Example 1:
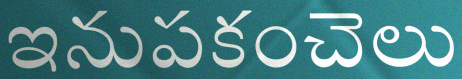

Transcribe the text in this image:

ఇనుపకంచెలు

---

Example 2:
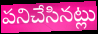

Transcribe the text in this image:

పనిచేసినట్లు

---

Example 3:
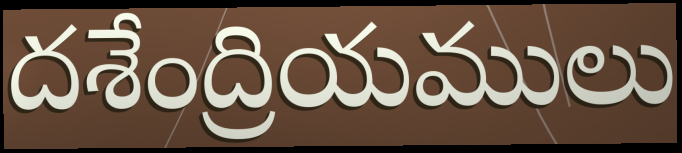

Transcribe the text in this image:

దశేంద్రియములు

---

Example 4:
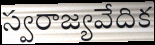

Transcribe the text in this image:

స్వరాజ్యవేదిక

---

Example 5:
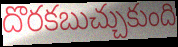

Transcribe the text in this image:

దొరకబుచ్చుకుంది